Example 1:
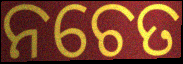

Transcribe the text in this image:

ନଚେତ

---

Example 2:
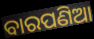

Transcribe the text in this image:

ବାରପଣିଆ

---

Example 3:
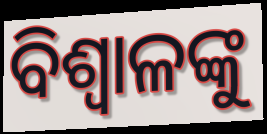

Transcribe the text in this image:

ବିଶ୍ୱାଳଙ୍କୁ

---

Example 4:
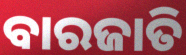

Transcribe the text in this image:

ବାରଜାତି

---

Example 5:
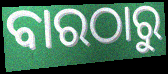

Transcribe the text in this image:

ବାରଠାରୁ